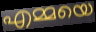
എമ്മയെ